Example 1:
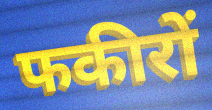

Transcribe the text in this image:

फकीरों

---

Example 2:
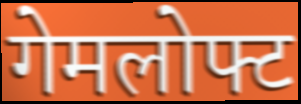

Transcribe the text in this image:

गेमलोफ्ट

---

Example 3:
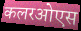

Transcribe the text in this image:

कलरओएस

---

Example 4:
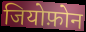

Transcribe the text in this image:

जियोफ़ोन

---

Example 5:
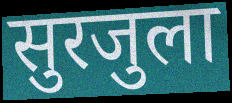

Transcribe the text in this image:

सुरजुला